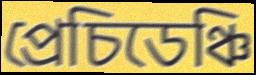
প্ৰেচিডেঞ্চি